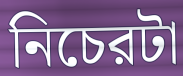
নিচেরটা